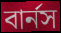
বার্নস